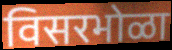
विसरभोळा